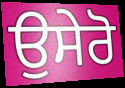
ਉਸੇਰੋ